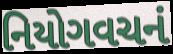
નિયોગવચનં